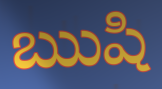
ఋషి